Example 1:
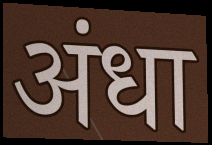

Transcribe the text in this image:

अंधा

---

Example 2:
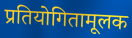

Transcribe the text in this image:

प्रतियोगितामूलक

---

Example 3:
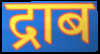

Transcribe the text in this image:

द्राब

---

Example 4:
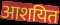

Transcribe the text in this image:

आशयित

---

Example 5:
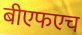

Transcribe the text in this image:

बीएफएच